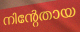
നിന്റേതായ